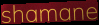
shamane